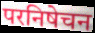
परनिषेचन